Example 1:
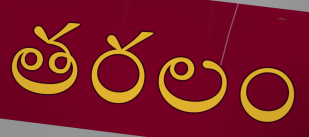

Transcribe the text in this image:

తరలం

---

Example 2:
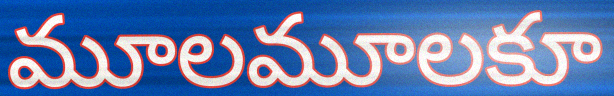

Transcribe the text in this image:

మూలమూలకూ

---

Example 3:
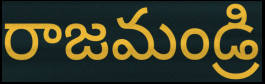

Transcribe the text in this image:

రాజమండ్రి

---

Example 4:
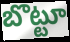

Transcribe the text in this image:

బొట్టూ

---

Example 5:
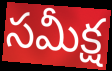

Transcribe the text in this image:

సమీక్ష